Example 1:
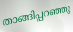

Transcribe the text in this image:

താങ്ങിപ്പറഞ്ഞു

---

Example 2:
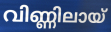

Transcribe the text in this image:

വിണ്ണിലായ്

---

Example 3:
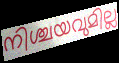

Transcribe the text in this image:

നിശ്ചയവുമില്ല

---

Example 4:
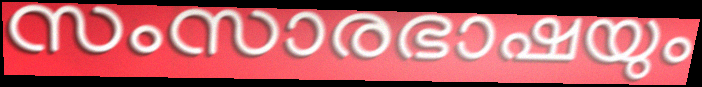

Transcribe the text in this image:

സംസാരഭാഷയും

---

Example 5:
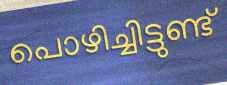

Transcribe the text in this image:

പൊഴിച്ചിട്ടുണ്ട്